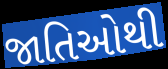
જાતિઓથી